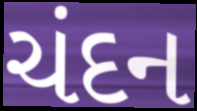
ચંદન